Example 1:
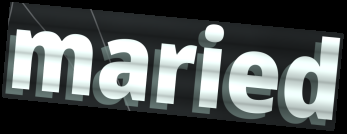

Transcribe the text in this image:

maried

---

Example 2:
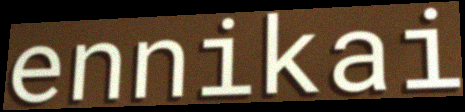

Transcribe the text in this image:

ennikai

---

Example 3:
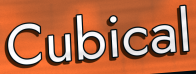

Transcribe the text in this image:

Cubical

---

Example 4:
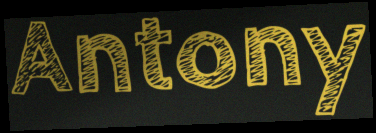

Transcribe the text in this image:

Antony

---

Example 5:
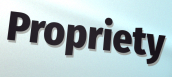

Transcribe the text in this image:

Propriety